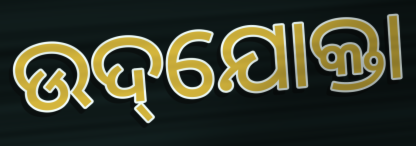
ଉଦ୍‌ଯୋକ୍ତା